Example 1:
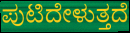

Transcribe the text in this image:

ಪುಟಿದೇಳುತ್ತದೆ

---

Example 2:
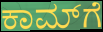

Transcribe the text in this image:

ಕಾಮ್‌ಗೆ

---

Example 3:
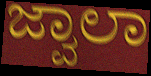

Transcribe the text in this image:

ಜ್ವಾಲಾ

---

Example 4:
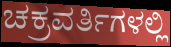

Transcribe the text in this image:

ಚಕ್ರವರ್ತಿಗಳಲ್ಲಿ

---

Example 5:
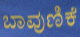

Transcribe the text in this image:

ಬಾವುಣಿಕೆ